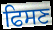
ਫਿਸਣ